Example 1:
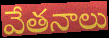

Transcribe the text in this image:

వేతనాలు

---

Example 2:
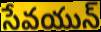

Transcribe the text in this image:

సేవయున్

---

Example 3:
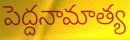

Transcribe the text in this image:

పెద్దనామాత్య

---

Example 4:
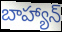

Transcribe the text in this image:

బాహ్యాన్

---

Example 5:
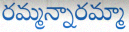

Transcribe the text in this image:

రమ్మన్నారమ్మా